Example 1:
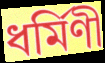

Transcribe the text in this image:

ধর্মিণী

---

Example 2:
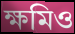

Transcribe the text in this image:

ক্ষমিও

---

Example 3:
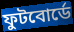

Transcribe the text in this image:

ফুটবোর্ডে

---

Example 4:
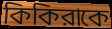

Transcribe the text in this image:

কিকিরাকে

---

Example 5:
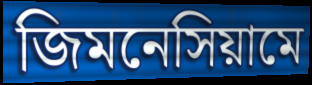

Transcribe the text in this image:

জিমনেসিয়ামে